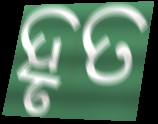
ହୃତ